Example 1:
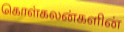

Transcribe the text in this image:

கொள்கலன்களின்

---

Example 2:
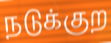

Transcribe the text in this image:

நடுக்குற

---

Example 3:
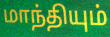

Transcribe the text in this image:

மாந்தியும்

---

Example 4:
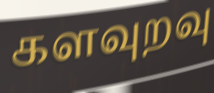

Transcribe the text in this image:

களவுறவு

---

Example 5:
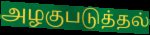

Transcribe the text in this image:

அழகுபடுத்தல்